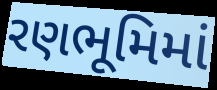
રણભૂમિમાં